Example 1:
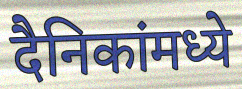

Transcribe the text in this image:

दैनिकांमध्ये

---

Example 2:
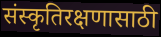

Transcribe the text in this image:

संस्कृतिरक्षणासाठी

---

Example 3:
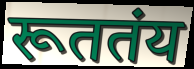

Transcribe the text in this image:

रूततंय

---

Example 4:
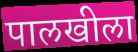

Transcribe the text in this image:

पालखीला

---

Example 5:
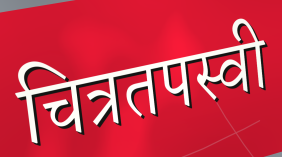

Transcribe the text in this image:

चित्रतपस्वी